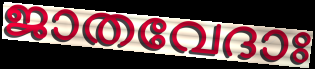
ജാതവേദാഃ